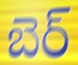
బెర్